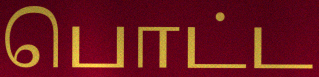
பொட்ட